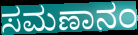
ಸಮಣಾನಂ